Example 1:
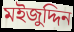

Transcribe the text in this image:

মইজুদ্দিন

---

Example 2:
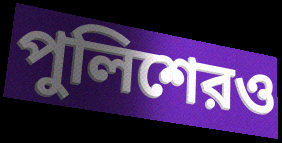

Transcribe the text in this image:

পুলিশেরও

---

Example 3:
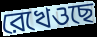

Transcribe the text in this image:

রেখেওছে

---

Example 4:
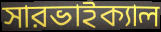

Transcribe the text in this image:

সারভাইক্যাল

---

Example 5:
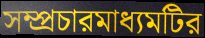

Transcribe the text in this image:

সম্প্রচারমাধ্যমটির